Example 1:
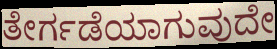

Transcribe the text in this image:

ತೇರ್ಗಡೆಯಾಗುವುದೇ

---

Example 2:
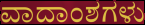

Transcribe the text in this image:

ವಾದಾಂಶಗಳು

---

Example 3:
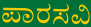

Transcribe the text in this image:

ಪಾರಸವಿ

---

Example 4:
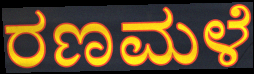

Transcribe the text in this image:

ರಣಮಳೆ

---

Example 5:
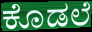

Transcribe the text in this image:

ಕೊಡಲೆ